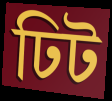
ঢিট